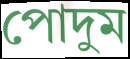
পোদুম